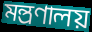
মন্ত্রণালয়